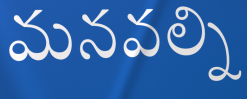
మనవల్ని